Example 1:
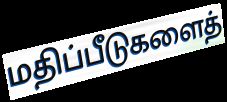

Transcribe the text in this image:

மதிப்பீடுகளைத்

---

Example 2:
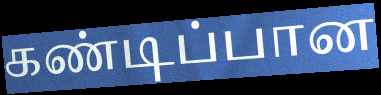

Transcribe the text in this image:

கண்டிப்பான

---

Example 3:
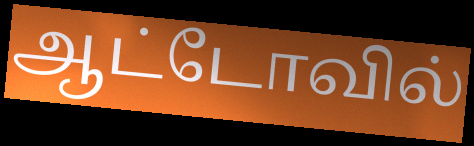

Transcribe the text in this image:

ஆட்டோவில்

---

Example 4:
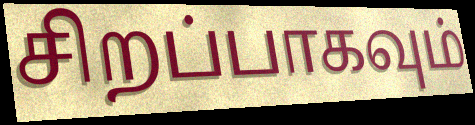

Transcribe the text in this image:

சிறப்பாகவும்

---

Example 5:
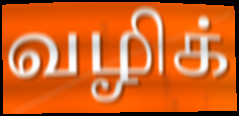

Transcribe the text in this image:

வழிக்